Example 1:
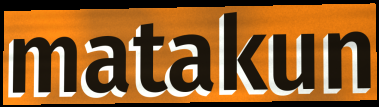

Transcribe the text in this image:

matakun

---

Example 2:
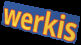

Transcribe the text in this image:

werkis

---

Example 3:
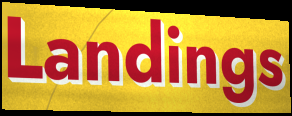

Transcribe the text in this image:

Landings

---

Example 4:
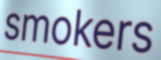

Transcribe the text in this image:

smokers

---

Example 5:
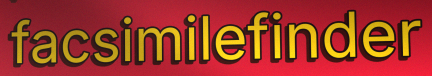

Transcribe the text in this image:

facsimilefinder